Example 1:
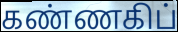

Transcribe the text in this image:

கண்ணகிப்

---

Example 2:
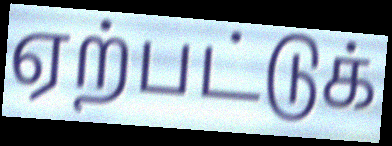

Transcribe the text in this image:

ஏற்பட்டுக்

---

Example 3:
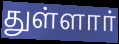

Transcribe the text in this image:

துள்ளார்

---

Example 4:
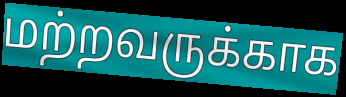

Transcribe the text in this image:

மற்றவருக்காக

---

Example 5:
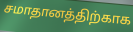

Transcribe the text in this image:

சமாதானத்திற்காக